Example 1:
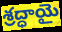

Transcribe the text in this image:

శ్రద్ధాయై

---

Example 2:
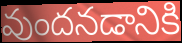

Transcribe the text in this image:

వుందనడానికి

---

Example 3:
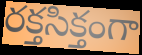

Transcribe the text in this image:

రక్తసిక్తంగా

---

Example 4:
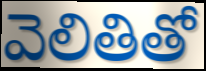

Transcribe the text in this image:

వెలితితో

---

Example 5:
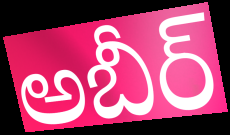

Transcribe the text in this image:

అబీర్